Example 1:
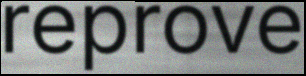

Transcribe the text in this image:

reprove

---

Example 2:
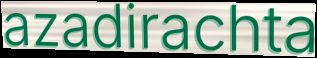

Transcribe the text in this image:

azadirachta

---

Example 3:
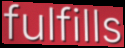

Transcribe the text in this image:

fulfills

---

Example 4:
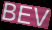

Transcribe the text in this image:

BEV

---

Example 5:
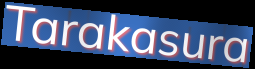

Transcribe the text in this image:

Tarakasura